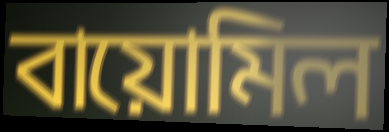
বায়োমিল